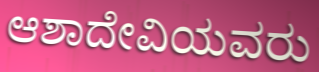
ಆಶಾದೇವಿಯವರು